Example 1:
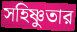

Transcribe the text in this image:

সহিষ্ণুতার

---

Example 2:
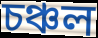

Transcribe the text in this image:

চঞ্চল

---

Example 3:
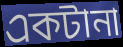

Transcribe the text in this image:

একটানা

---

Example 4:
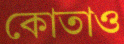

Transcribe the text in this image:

কোতাও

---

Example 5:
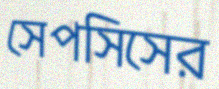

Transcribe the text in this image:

সেপসিসের